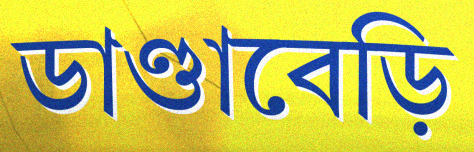
ডাণ্ডাবেড়ি